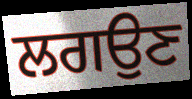
ਲਗਉਣ